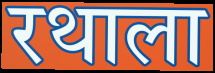
रथाला